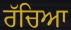
ਰੱਚਿਆ